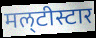
मल्टीस्टार